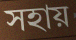
সহায়